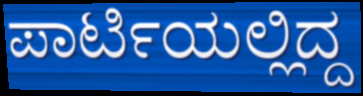
ಪಾರ್ಟಿಯಲ್ಲಿದ್ದ